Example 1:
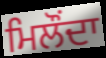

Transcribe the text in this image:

ਮਿਲੌਂਦਾ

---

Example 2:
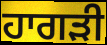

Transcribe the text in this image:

ਹਾਗੜੀ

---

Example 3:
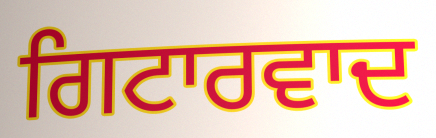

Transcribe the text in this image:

ਗਿਟਾਰਵਾਦ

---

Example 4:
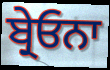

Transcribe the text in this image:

ਬ੍ਰੇਓਨਾ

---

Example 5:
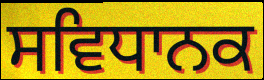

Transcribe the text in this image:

ਸਵਿਧਾਨਕ